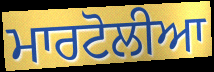
ਮਾਰਟੋਲੀਆ